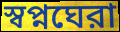
স্বপ্নঘেরা